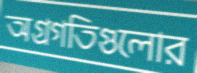
অগ্রগতিগুলোর